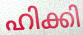
ഹിക്കി